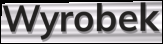
Wyrobek